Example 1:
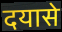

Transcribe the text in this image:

दयासे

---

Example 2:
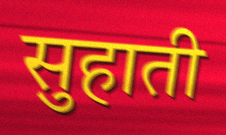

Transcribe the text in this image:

सुहाती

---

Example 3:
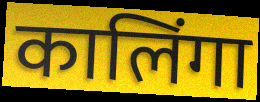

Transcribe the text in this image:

कालिंगा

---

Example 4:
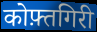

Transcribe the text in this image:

कोफ़्तगिरी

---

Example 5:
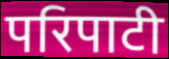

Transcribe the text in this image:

परिपाटी